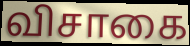
விசாகை